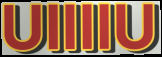
UIIIIU